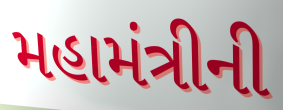
મહામંત્રીની